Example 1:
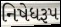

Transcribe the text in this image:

નિષેધરૂપ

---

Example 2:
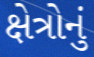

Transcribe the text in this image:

ક્ષેત્રોનું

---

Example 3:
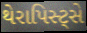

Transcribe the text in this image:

થેરાપિસ્ટ્સે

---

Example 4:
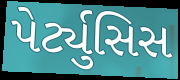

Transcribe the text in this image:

પેર્ટ્યુસિસ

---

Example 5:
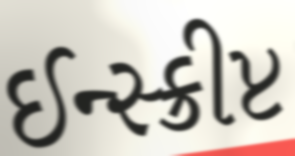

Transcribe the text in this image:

ઈન્સ્ક્રીપ્ટ